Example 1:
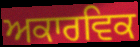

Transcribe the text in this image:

ਅਕਾਰਵਿਕ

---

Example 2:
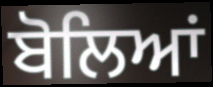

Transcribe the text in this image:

ਬੋਲਿਆਂ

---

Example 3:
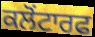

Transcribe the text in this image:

ਕਲੋਂਟਾਰਫ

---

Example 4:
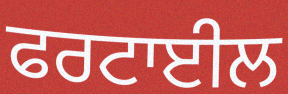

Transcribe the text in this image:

ਫਰਟਾਈਲ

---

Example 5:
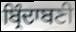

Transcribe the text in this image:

ਬ੍ਰਿੰਦਾਬਣੀ